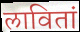
लावितां